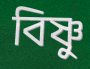
বিষ্ণু